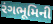
રંગભૂમિની